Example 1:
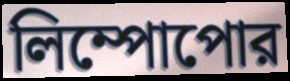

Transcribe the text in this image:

লিম্পোপোর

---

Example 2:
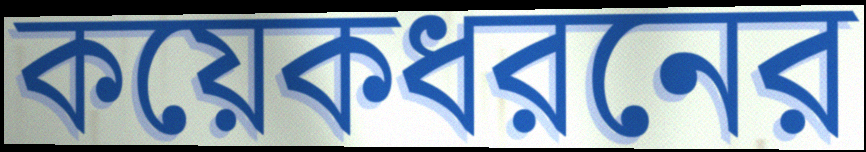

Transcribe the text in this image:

কয়েকধরনের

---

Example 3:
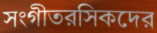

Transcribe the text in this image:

সংগীতরসিকদের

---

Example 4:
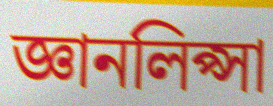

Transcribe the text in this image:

জ্ঞানলিপ্সা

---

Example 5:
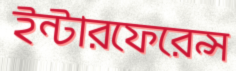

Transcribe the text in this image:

ইন্টারফেরেন্স